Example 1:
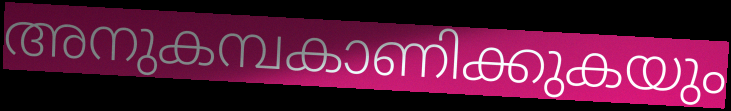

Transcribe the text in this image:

അനുകമ്പകാണിക്കുകയും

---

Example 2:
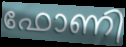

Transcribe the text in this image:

ഫോണി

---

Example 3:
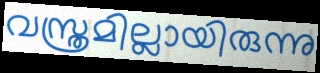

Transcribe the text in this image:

വസ്ത്രമില്ലായിരുന്നു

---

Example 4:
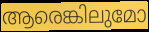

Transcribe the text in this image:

ആരെങ്കിലുമോ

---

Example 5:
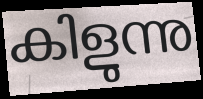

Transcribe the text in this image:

കിളുന്നു